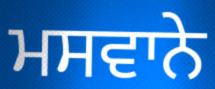
ਮਸਵਾਨੇ